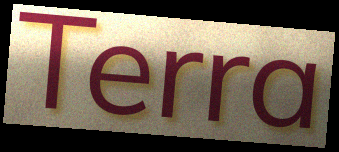
Terra